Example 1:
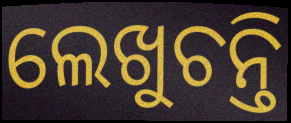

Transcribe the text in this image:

ଲେଖୁଚନ୍ତି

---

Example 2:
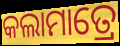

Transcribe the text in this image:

କଲାମାତ୍ରେ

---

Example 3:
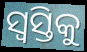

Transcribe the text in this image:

ସ୍ୱସ୍ତିକୁ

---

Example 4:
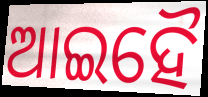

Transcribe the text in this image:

ଆଇହୈ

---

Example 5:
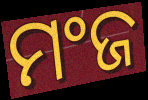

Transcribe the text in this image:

ମଂଜ